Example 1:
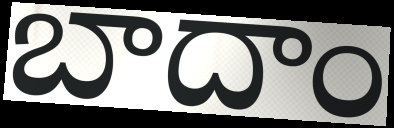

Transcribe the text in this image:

బాదాం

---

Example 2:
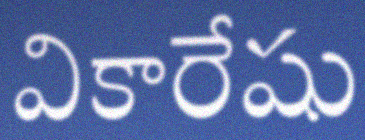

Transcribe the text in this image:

వికారేషు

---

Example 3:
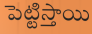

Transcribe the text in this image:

పెట్టిస్తాయి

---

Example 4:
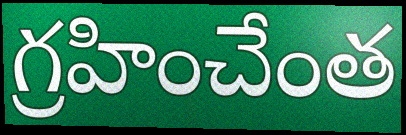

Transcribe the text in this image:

గ్రహించేంత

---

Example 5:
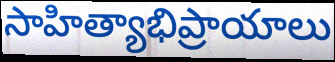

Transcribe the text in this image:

సాహిత్యాభిప్రాయాలు